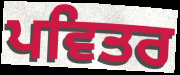
ਪਵਿਤਰ